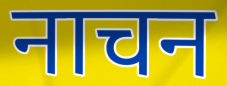
नाचन